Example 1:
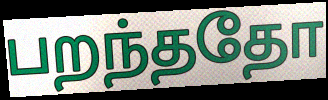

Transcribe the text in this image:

பறந்ததோ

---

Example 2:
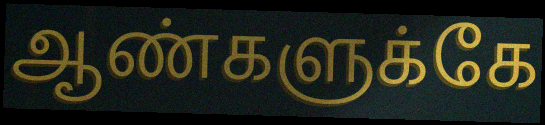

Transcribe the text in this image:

ஆண்களுக்கே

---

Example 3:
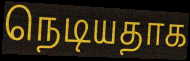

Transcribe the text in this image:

நெடியதாக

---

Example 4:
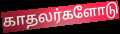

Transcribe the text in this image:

காதலர்களோடு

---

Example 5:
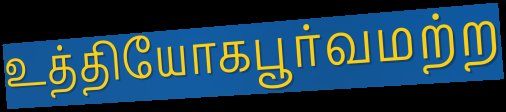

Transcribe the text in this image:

உத்தியோகபூர்வமற்ற